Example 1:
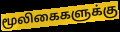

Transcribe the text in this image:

மூலிகைகளுக்கு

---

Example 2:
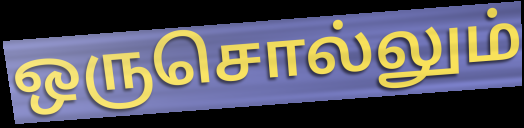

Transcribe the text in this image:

ஒருசொல்லும்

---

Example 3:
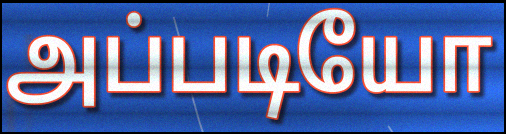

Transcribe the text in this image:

அப்படியோ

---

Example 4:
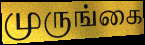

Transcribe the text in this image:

முருங்கை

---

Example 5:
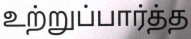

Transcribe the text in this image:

உற்றுப்பார்த்த